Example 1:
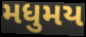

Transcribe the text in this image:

મધુમય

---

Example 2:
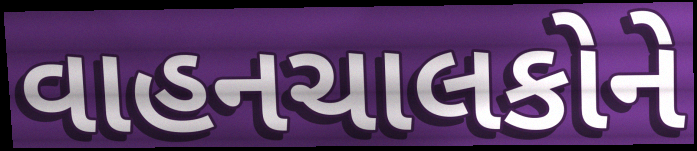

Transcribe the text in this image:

વાહનચાલકોને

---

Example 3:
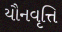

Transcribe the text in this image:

યૌનવૃત્તિ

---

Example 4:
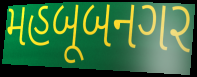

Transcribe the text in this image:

મહબૂબનગર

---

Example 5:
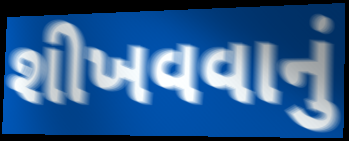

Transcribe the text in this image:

શીખવવાનું